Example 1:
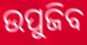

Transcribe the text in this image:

ଉପୁଜିବ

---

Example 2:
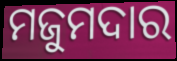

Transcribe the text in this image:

ମଜୁମଦାର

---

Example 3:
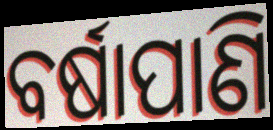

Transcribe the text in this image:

ବର୍ଷାପାଣି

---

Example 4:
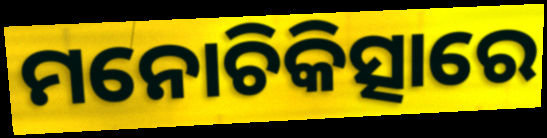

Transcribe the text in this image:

ମନୋଚିକିତ୍ସାରେ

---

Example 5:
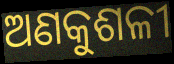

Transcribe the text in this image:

ଅଣକୁଶଳୀ